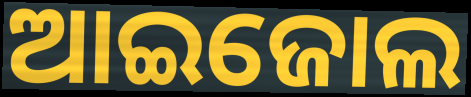
ଆଇଜୋଲ